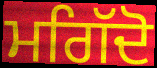
ਮਗਿੱਦੋ